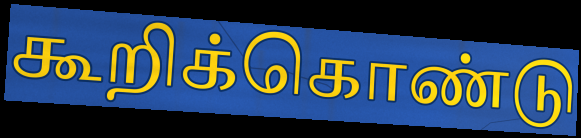
கூறிக்கொண்டு